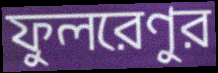
ফুলরেণুর